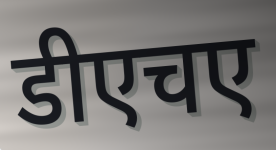
डीएचए